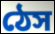
ঠেস